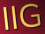
IIG